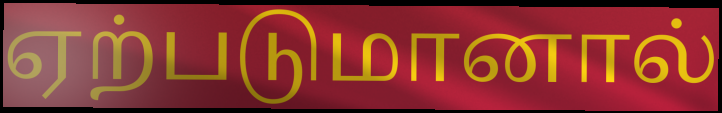
ஏற்படுமானால்